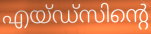
എയ്ഡ്സിന്റെ